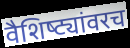
वैशिष्ट्यांवरच